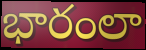
భారంలా